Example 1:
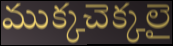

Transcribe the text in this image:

ముక్కచెక్కలై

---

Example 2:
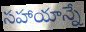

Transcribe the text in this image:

సహాయాన్నే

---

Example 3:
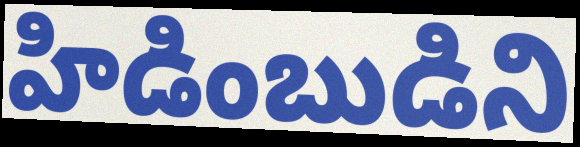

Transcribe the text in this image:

హిడింబుడిని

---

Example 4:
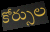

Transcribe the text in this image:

కోర్సుల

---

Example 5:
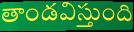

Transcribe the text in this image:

తాండవిస్తుంది